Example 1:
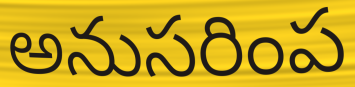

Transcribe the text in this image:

అనుసరింప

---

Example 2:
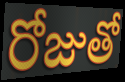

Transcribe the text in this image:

రోజుతో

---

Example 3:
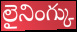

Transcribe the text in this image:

లైనింగ్కు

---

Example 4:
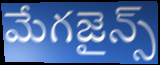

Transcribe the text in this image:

మేగజైన్స్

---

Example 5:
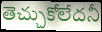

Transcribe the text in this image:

తెచ్చుకోలేదనీ